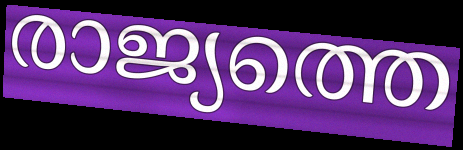
രാജ്യത്തെ